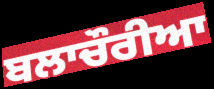
ਬਲਾਚੌਰੀਆ